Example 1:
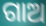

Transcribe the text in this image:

ଗାଅ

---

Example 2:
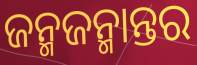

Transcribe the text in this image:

ଜନ୍ମଜନ୍ମାନ୍ତର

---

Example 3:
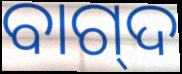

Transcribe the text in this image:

ବାଗ୍‌ଦ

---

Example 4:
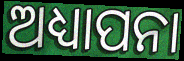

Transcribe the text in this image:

ଅଧ୍ଯାପନା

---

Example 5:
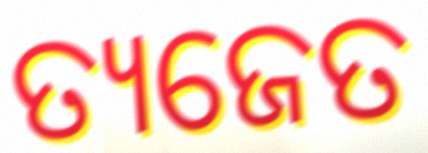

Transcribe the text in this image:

ତ୍ୟଜେତ